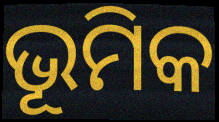
ଭୂମିକ